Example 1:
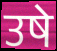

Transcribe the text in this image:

उषे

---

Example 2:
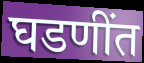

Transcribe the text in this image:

घडणींत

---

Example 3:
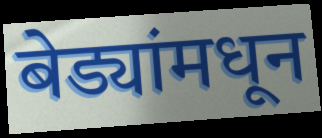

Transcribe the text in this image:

बेड्यांमधून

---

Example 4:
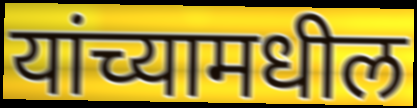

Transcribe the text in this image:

यांच्यामधील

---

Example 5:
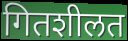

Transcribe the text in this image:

गितशीलत